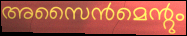
അസൈൻമെന്റും